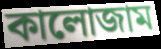
কালোজাম